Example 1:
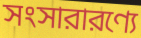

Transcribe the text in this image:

সংসারারণ্যে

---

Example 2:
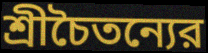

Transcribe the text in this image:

শ্রীচৈতন্যের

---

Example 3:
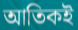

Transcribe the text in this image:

আতিকই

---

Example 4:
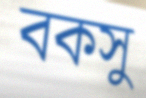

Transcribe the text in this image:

বকসু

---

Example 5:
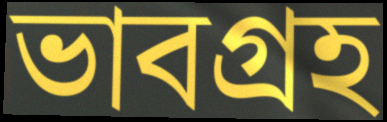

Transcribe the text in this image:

ভাবগ্রহ